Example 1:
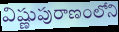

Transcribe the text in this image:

విష్ణుపురాణంలోని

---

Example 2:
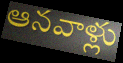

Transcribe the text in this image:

ఆనవాళ్లు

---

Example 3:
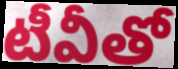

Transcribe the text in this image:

టీవీతో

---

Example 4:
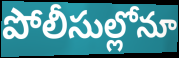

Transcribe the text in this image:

పోలీసుల్లోనూ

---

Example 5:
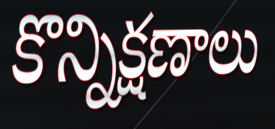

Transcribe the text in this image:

కొన్నిక్షణాలు